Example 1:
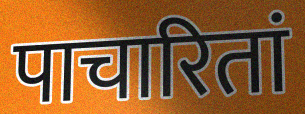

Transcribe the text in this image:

पाचारितां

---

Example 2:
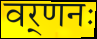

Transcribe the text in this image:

वर्णनः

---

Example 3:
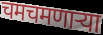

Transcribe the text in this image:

चमचमणाऱ्या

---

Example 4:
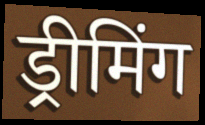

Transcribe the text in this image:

ड्रीमिंग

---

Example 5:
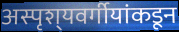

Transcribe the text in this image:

अस्पृश्यवर्गीयांकडून